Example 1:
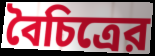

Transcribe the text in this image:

বৈচিত্রের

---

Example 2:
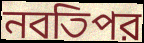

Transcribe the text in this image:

নবতিপর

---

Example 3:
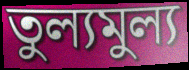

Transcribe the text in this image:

তুল্যমুল্য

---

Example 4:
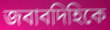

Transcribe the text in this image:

জবাবদিহিকে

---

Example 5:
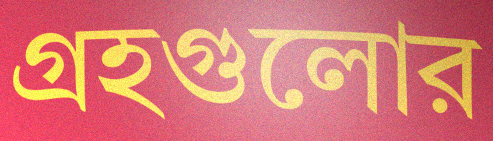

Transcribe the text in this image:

গ্রহগুলোর